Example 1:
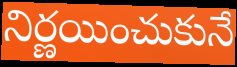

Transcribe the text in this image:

నిర్ణయించుకునే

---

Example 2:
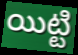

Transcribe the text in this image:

యిట్టి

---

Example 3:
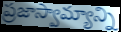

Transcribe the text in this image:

ప్రజాస్వామ్యాన్ని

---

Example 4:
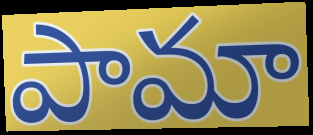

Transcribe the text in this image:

పామా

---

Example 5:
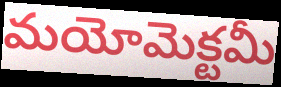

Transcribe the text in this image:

మయోమెక్టమీ